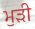
ਮੁੜੀ